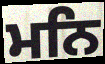
ਮਨਿ